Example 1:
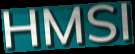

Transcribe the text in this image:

HMSI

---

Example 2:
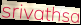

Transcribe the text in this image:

srivathsa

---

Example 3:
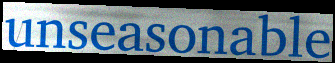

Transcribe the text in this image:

unseasonable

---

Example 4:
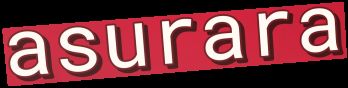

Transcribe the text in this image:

asurara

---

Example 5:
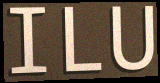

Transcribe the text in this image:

ILU